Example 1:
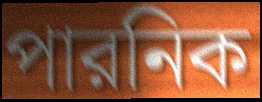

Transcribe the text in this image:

পারনিক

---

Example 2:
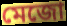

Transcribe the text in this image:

মেজো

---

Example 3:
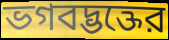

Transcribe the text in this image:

ভগবদ্ভক্তের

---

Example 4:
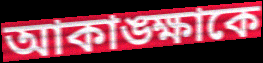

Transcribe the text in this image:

আকাঙ্ক্ষাকে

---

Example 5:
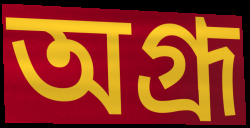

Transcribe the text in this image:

অগ্রূ